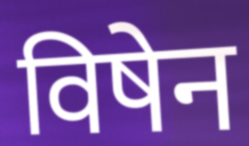
विषेन